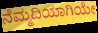
ನೆಮ್ಮದಿಯಾಗಿಯೇ